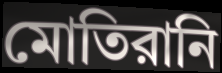
মোতিরানি